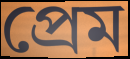
প্রেম